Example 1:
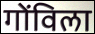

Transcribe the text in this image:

गोंविला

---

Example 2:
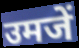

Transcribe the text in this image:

उमजें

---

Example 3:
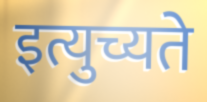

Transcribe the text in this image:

इत्युच्यते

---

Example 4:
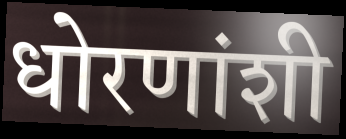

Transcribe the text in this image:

धोरणांशी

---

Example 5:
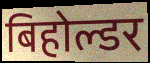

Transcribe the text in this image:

बिहोल्डर